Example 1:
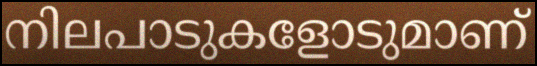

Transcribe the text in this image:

നിലപാടുകളോടുമാണ്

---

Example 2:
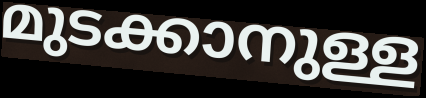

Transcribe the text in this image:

മുടക്കാനുള്ള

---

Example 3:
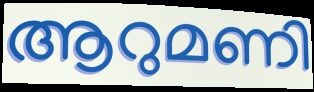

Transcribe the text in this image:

ആറുമണി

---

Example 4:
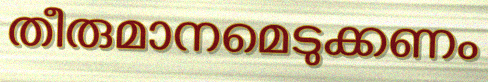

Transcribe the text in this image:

തീരുമാനമെടുക്കണം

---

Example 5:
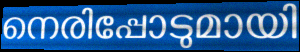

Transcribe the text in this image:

നെരിപ്പോടുമായി